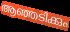
ആഞ്ഞടിക്കും